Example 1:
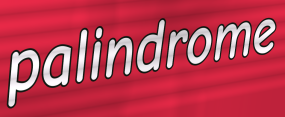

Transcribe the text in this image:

palindrome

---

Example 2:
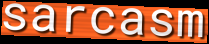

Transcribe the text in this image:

sarcasm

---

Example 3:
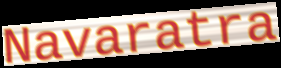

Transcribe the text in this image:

Navaratra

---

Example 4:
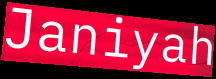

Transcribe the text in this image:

Janiyah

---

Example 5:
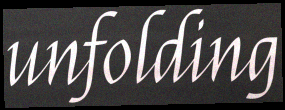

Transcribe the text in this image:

unfolding